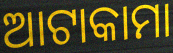
ଆଟାକାମା